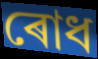
ৰোধ